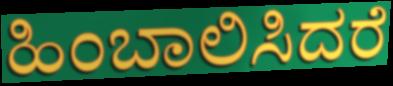
ಹಿಂಬಾಲಿಸಿದರೆ